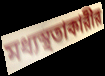
মধ্যস্থতাকারীর